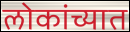
लोकांच्यात